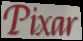
Pixar